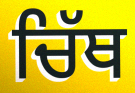
ਚਿੱਥ